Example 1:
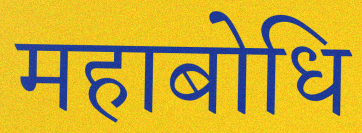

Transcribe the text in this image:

महाबोधि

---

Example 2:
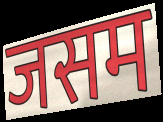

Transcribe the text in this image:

जसम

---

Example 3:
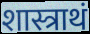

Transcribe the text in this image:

शास्त्राथं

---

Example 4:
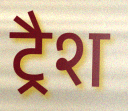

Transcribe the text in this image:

ट्रैश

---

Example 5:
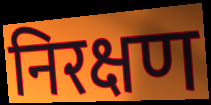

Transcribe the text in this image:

निरक्षण